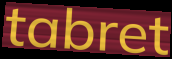
tabret